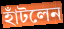
হাঁটলেন